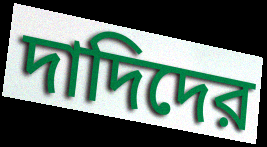
দাদিদের